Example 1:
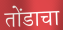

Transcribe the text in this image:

तोंडाचा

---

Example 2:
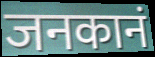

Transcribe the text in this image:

जनकानं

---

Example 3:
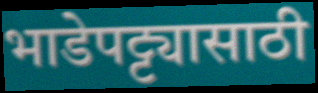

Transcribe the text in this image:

भाडेपट्ट्यासाठी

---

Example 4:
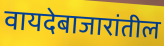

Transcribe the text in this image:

वायदेबाजारांतील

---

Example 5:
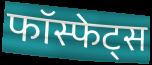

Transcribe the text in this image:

फॉस्फेट्स